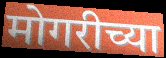
मोगरीच्या